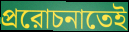
প্ররোচনাতেই